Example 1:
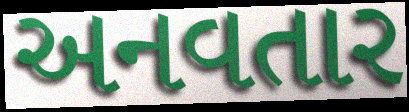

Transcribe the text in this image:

અનવતાર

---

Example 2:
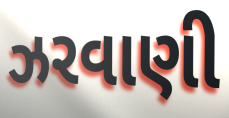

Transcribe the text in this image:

ઝરવાણી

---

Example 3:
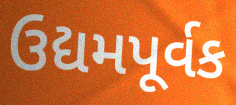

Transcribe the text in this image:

ઉદ્યમપૂર્વક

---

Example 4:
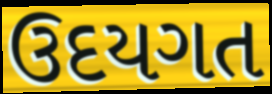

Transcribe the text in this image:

ઉદયગત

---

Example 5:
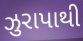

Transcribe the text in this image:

ઝુરાપાથી